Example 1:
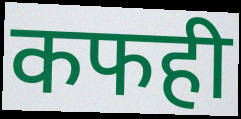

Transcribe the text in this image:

कफही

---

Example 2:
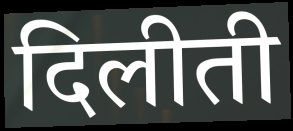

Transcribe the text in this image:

दिलीती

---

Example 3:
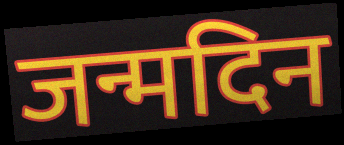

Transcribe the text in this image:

जन्मदिन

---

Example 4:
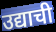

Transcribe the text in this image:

उद्याची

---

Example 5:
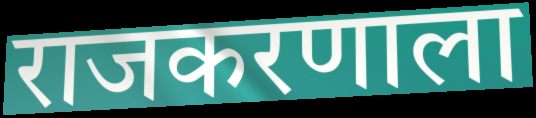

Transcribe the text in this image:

राजकरणाला